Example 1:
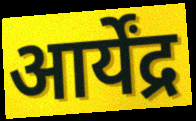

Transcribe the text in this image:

आर्येंद्र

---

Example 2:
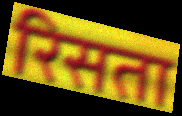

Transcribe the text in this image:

रिसता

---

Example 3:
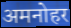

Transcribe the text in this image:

अमनोहर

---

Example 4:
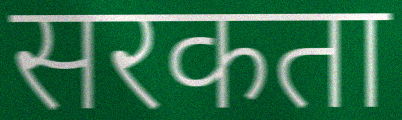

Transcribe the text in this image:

सरकता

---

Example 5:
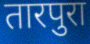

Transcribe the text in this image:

तारपुरा